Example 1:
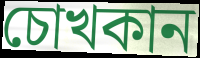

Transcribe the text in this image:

চোখকান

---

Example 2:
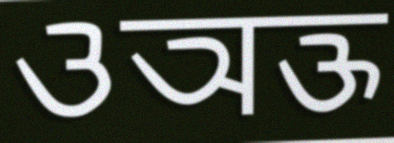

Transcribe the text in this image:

ওঅক্ত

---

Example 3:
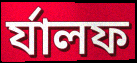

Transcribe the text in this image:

র্যালফ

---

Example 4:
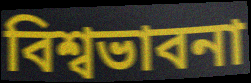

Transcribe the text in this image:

বিশ্বভাবনা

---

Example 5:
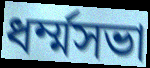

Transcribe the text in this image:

ধর্ম্মসভা